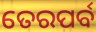
ତେରପର୍ବ